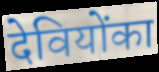
देवियोंका